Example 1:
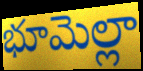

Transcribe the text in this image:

భూమెల్లా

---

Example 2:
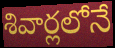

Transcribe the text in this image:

శివార్లలోనే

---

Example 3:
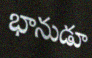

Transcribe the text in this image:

భానుడూ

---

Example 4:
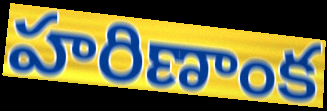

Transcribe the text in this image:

హరిణాంక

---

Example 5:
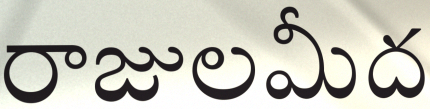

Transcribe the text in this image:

రాజులమీద